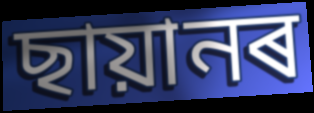
ছায়ানৰ